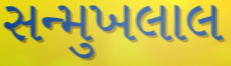
સન્મુખલાલ